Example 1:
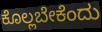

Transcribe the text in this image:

ಕೊಲ್ಲಬೇಕೆಂದು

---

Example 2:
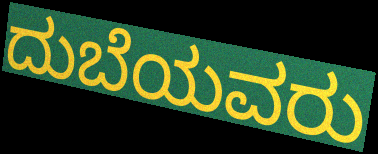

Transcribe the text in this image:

ದುಬೆಯವರು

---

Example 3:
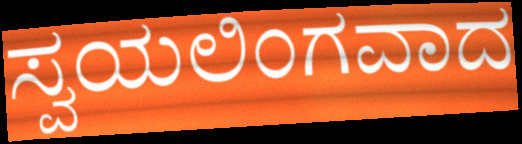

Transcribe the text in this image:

ಸ್ವಯಲಿಂಗವಾದ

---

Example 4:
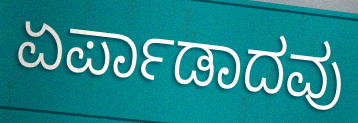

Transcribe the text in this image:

ಏರ್ಪಾಡಾದವು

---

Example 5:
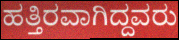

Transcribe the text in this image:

ಹತ್ತಿರವಾಗಿದ್ದವರು